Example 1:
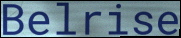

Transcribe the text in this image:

Belrise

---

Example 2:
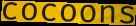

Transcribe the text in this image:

cocoons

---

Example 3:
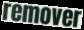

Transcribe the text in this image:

remover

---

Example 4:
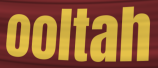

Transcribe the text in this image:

ooltah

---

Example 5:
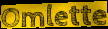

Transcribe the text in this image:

Omlette